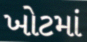
ખોટમાં